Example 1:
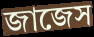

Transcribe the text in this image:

জাজেস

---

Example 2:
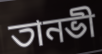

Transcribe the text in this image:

তানভী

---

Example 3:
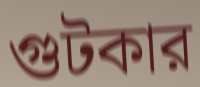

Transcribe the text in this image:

গুটকার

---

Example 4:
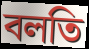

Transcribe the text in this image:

বলতি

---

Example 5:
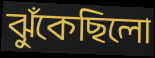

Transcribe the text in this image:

ঝুঁকেছিলো